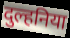
दुल्हनिया